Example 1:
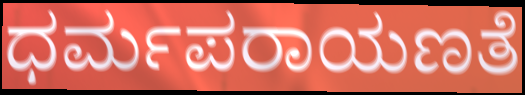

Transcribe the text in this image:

ಧರ್ಮಪರಾಯಣತೆ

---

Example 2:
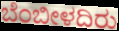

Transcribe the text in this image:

ಬೆಂಬೀಳದಿರು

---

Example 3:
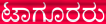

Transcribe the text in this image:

ಟಾಗೂರರು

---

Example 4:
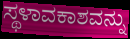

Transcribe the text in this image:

ಸ್ಥಳಾವಕಾಶವನ್ನು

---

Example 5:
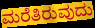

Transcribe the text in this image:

ಮರೆತಿರುವುದು